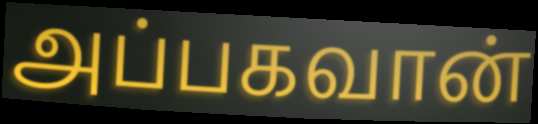
அப்பகவான்